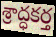
శ్రాద్ధకర్త